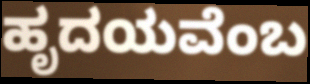
ಹೃದಯವೆಂಬ